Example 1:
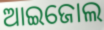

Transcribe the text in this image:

ଆଇଜୋଲ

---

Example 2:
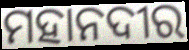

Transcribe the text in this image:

ମହାନଦୀର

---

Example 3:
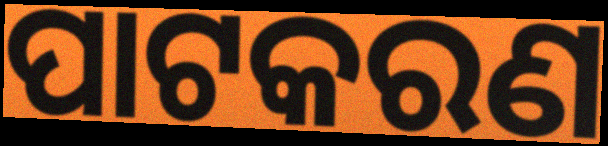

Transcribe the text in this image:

ପାଟକରଣ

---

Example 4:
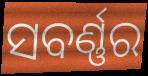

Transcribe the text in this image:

ସବର୍ଣ୍ଣର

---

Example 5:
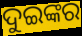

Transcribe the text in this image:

ଦୁଇଙ୍କର